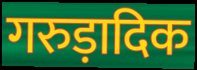
गरुड़ादिक